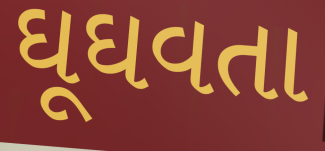
ઘૂઘવતા